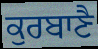
ਕੁਰਬਾਣੈ